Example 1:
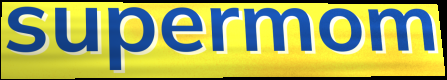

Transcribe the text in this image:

supermom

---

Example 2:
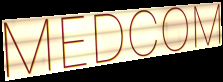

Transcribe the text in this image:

MEDCOM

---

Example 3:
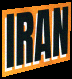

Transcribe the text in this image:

IRAN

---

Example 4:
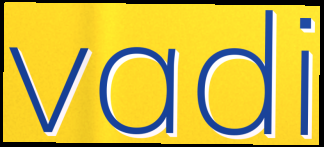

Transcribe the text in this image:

vadi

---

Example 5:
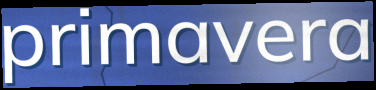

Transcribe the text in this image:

primavera